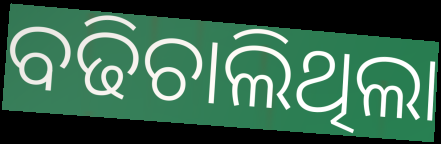
ବଢିଚାଲିଥିଲା